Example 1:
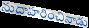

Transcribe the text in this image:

నుదాహరించినాడు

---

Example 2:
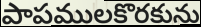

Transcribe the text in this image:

పాపములకొరకును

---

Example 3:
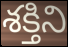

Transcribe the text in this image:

శక్తిని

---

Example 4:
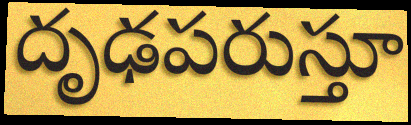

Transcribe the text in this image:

దృఢపరుస్తూ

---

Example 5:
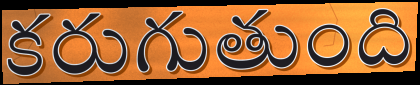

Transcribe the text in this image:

కరుగుతుంది